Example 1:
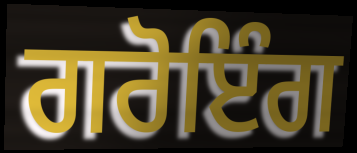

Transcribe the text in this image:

ਗਰੋਇੰਗ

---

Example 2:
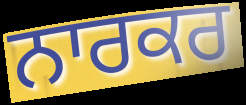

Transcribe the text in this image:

ਨਾਰਕਰ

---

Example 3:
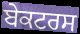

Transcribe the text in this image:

ਬੇਕਟਰਸ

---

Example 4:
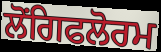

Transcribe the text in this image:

ਲੋਂਗਿਫਲੋਰਮ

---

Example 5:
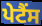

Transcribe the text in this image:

ਪੇਟੈਂਸ